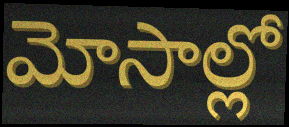
మోసాల్లో